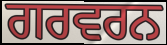
ਗਰਵਰਨ